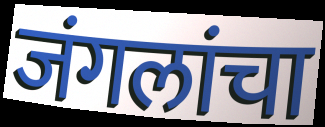
जंगलांचा